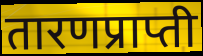
तारणप्राप्ती